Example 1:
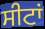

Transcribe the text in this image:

ਸੀਟਾਂ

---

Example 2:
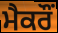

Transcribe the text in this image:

ਮੈਕਰੌਂ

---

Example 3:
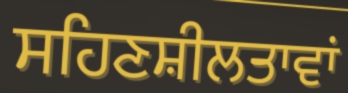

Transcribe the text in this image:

ਸਹਿਣਸ਼ੀਲਤਾਵਾਂ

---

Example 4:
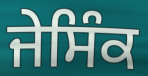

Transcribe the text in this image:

ਜੇਸਿੰਕ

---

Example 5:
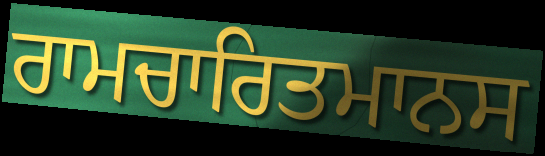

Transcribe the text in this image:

ਰਾਮਚਾਰਿਤਮਾਨਸ